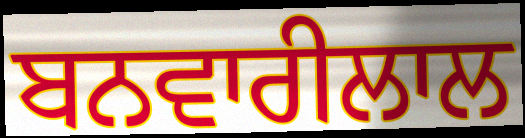
ਬਨਵਾਰੀਲਾਲ